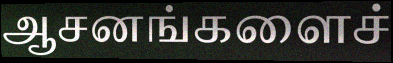
ஆசனங்களைச்